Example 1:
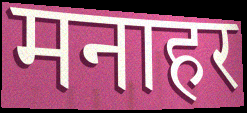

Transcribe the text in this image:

मनाहर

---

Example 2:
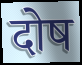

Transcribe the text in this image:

दोष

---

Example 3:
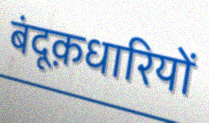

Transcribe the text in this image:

बंदूक़धारियों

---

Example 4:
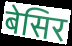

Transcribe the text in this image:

बेसिर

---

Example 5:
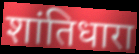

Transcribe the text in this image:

शांतिधारा